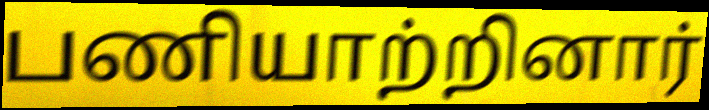
பணியாற்றினார்